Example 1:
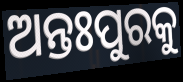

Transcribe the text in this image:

ଅନ୍ତଃପୁରକୁ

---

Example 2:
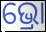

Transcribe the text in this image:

ଭ୍ରୋ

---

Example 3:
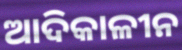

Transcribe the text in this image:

ଆଦିକାଳୀନ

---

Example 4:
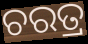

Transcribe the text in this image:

ଚରତ୍ର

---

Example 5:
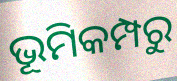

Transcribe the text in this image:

ଭୂମିକମ୍ପରୁ